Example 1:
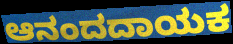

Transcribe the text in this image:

ಆನಂದದಾಯಕ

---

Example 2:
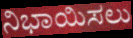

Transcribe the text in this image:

ನಿಭಾಯಿಸಲು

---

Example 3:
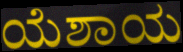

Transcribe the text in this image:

ಯೆಶಾಯ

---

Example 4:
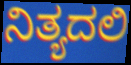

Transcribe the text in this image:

ನಿತ್ಯದಲಿ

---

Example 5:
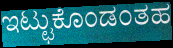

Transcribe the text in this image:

ಇಟ್ಟುಕೊಂಡಂತಹ